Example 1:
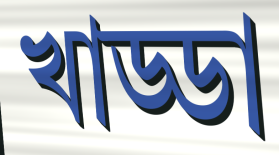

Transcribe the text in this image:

খাড্ডা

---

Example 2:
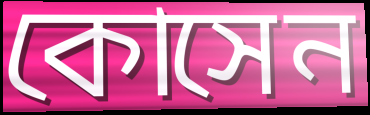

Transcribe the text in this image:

কোসেন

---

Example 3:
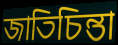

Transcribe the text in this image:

জাতিচিন্তা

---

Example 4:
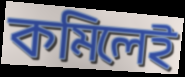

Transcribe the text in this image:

কমিলেই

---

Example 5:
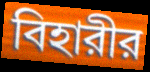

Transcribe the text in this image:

বিহারীর